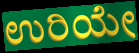
ಉರಿಯೇ